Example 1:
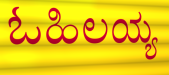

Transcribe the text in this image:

ಓಹಿಲಯ್ಯ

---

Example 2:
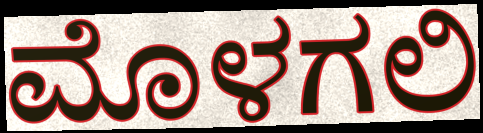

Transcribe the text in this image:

ಮೊಳಗಲಿ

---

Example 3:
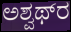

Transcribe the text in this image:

ಅಶ್ವಥ್‌ರ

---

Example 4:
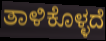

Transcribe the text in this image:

ತಾಳಿಕೊಳ್ಳದೆ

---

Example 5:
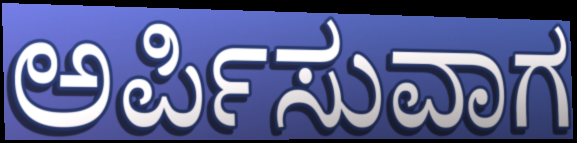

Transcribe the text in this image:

ಅರ್ಪಿಸುವಾಗ